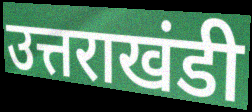
उत्तराखंडी